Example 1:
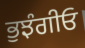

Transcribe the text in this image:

ਭੁਝੰਗੀਓ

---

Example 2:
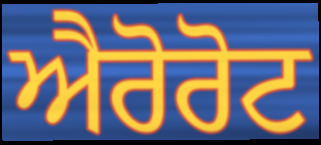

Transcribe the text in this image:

ਐਰੋਰੋਟ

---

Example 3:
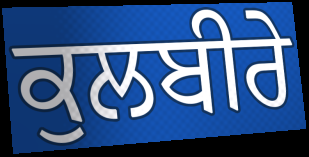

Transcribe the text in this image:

ਕੁਲਬੀਰੇ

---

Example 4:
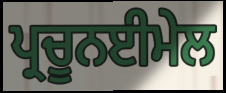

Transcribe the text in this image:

ਪ੍ਰਚੂਨਈਮੇਲ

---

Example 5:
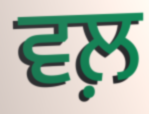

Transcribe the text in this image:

ਵਲ਼